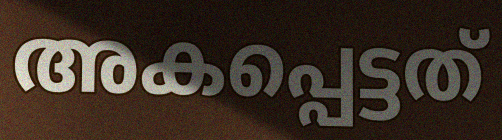
അകപ്പെട്ടത്